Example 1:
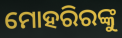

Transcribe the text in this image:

ମୋହରିରଙ୍କୁ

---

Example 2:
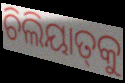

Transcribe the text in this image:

ଚିଲିୟାତ୍‍କୁ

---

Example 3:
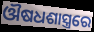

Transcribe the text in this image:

ଔଷଧଶାସ୍ତ୍ରରେ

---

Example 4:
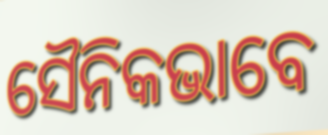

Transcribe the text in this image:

ସୈନିକଭାବେ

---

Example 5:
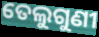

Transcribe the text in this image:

ତେଲୁଗୁଣୀ